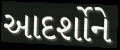
આદર્શોને